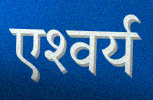
एश्‍वर्य